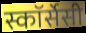
स्कॉर्सेसी